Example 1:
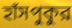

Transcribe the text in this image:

হাঁসপুকুর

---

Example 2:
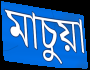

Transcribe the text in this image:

মাচুয়া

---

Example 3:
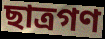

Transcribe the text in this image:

ছাত্রগণ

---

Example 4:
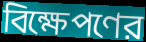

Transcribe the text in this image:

বিক্ষেপণের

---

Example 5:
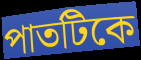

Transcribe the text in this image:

পাতটিকে